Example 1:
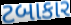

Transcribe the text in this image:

ટબાકાર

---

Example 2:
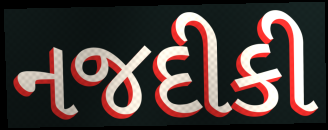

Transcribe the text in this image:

નજદીકી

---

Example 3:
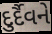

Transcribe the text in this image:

દુર્દૈવને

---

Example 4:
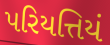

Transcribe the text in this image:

પરિયત્તિયં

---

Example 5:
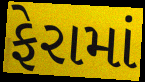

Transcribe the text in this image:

ફેરામાં